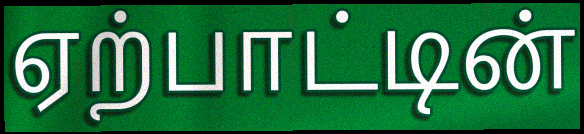
ஏற்பாட்டின்